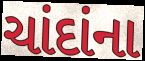
ચાંદાંના